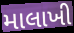
માલાખી